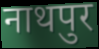
नाथपुर